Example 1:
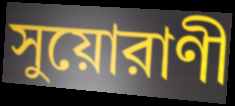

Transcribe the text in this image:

সুয়োরাণী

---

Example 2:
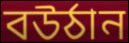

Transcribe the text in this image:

বউঠান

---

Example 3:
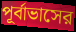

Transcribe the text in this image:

পূর্বাভাসের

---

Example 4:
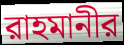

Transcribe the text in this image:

রাহমানীর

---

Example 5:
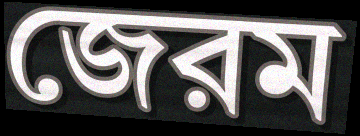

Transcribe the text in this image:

জেরম